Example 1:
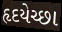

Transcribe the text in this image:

હૃદયેચ્છા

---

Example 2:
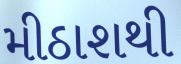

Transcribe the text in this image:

મીઠાશથી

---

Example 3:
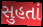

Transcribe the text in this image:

સુહતાં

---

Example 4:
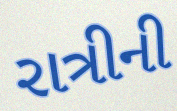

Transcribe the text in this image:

રાત્રીની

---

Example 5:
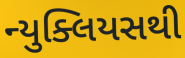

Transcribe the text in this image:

ન્યુક્લિયસથી